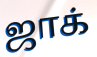
ஜாக்